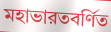
মহাভারতবর্ণিত